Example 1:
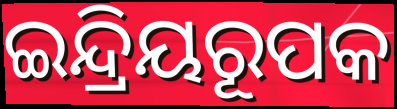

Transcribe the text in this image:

ଇନ୍ଦ୍ରିୟରୂପକ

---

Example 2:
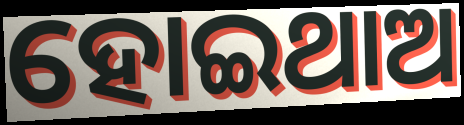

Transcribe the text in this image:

ହୋଇଥାଅ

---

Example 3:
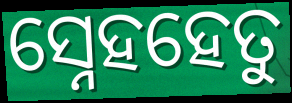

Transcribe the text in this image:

ସ୍ନେହହେତୁ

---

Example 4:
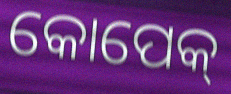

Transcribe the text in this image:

କୋପେକ୍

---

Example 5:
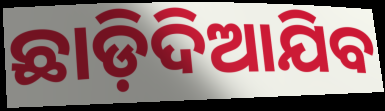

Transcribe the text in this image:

ଛାଡ଼ିଦିଆଯିବ